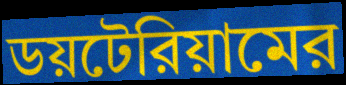
ডয়টেরিয়ামের